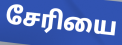
சேரியை